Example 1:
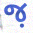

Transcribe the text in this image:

જ઼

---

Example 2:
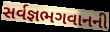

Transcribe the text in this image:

સર્વજ્ઞભગવાનની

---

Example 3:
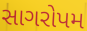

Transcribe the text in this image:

સાગરોપમ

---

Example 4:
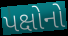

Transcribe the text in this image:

પક્ષોનો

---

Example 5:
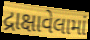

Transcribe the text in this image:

દ્રાક્ષાવેલામાં